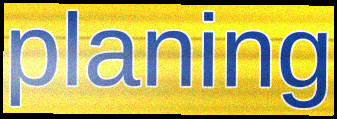
planing